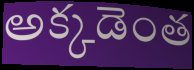
అక్కడెంత